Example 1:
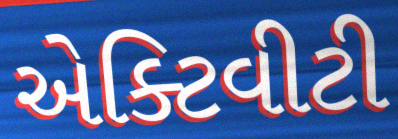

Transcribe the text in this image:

એક્ટિવીટી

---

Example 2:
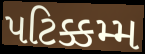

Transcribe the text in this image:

પટિક્કમ્મ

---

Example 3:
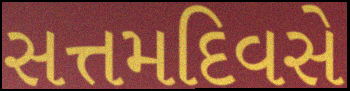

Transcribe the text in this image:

સત્તમદિવસે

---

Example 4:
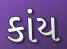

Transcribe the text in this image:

કાંય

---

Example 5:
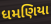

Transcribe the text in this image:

ધમણિયા